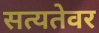
सत्यतेवर